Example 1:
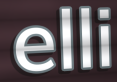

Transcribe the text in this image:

elli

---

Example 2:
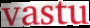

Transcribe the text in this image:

vastu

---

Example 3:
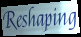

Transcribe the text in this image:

Reshaping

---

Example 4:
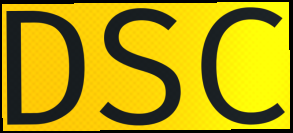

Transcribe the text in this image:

DSC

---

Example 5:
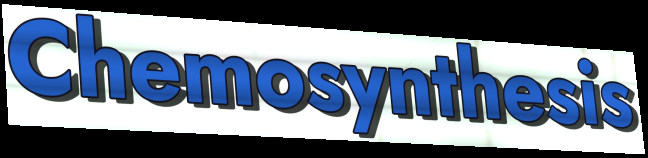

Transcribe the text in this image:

Chemosynthesis